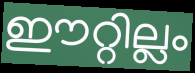
ഈറ്റില്ലം